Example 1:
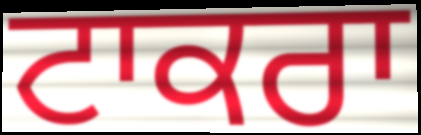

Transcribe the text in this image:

ਟਾਕਰਾ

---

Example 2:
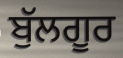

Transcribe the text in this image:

ਬੁੱਲਗੂਰ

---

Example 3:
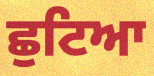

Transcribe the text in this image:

ਛੁਟਿਆ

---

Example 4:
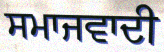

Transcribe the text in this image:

ਸਮਾਜਵਾਦੀ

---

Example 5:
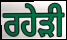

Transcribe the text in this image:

ਰਹੇੜੀ